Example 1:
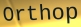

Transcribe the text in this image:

Orthop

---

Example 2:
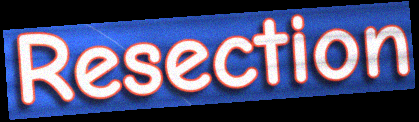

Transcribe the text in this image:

Resection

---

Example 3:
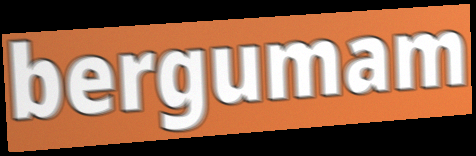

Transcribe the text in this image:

bergumam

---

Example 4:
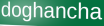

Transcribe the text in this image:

doghancha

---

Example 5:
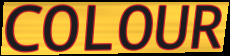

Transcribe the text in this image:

COLOUR